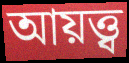
আয়ত্ত্ব